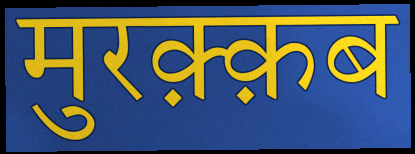
मुरक़्क़ब